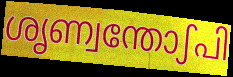
ശൃണ്വന്തോഽപി